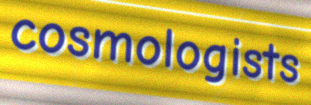
cosmologists